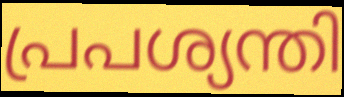
പ്രപശ്യന്തി